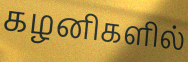
கழனிகளில்